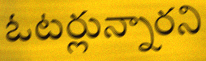
ఓటర్లున్నారని